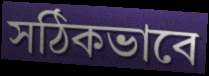
সঠিকভাবে